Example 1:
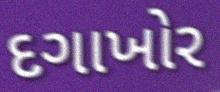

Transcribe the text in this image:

દગાખોર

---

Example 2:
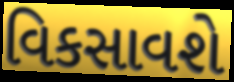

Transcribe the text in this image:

વિકસાવશે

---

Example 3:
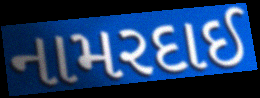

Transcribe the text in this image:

નામરદાઈ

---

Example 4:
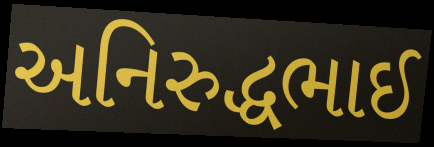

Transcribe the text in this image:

અનિરુદ્ધભાઈ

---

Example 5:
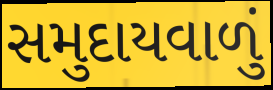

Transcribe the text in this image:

સમુદાયવાળું